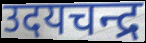
उदयचन्द्र